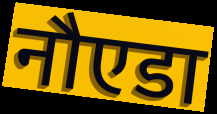
नौएडा